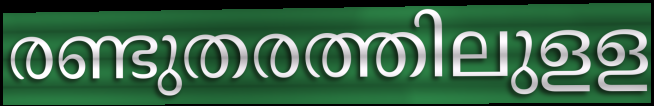
രണ്ടുതരത്തിലുളള